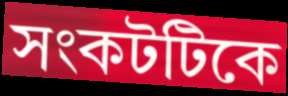
সংকটটিকে